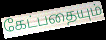
கேட்பதையும்